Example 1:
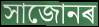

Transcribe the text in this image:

সাজোনৰ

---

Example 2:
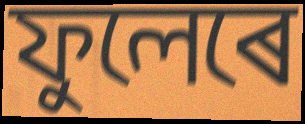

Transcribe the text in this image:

ফুলেৰে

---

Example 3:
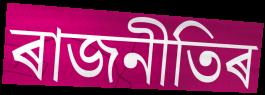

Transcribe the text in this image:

ৰাজনীতিৰ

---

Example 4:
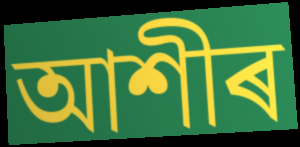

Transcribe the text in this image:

আশীৰ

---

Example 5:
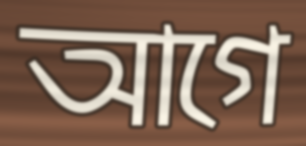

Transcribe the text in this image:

আগে